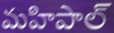
మహిపాల్